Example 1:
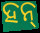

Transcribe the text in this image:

ହନ୍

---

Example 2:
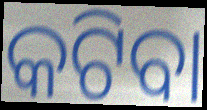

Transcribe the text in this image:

କଟିବା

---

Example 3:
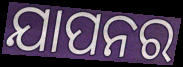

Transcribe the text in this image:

ଯାପନର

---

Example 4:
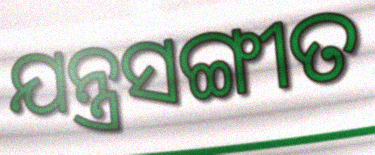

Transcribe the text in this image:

ଯନ୍ତ୍ରସଙ୍ଗୀତ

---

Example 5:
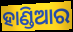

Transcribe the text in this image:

ହାଣ୍ଡିଆର